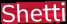
Shetti